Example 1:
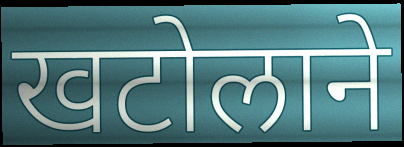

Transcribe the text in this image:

खटोलाने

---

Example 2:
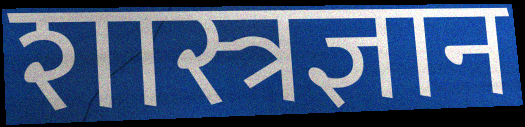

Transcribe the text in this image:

शास्त्रज्ञान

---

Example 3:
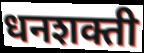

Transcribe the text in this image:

धनशक्ती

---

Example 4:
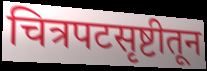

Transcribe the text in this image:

चित्रपटसृष्टीतून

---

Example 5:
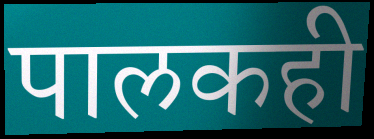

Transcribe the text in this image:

पालकही